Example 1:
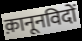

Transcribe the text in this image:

क़ानूनविदों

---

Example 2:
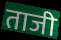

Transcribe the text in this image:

ताजी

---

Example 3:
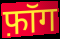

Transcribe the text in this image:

फ़ॉग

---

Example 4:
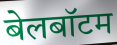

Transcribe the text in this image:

बेलबॉटम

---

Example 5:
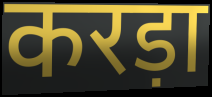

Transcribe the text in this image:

करड़ा